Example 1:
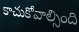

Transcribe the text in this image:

కాచుకోవాల్సింది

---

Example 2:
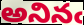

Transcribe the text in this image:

అనినఁ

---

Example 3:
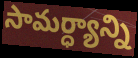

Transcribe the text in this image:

సామర్ధ్యాన్ని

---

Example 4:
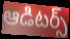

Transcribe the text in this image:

ఆడిటర్స్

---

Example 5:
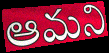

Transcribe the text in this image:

ఆమని